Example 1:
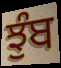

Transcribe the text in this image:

ਝੁੰਬ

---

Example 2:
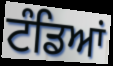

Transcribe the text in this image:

ਟੰਡਿਆਂ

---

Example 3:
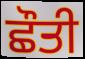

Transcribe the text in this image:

ਛੌਤੀ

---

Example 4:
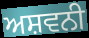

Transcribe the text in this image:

ਅਸ਼ਵਨੀ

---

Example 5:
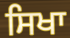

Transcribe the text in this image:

ਸਿਖਾ